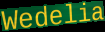
Wedelia